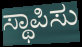
ಸ್ಥಾಪಿಸು